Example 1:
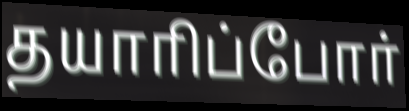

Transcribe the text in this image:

தயாரிப்போர்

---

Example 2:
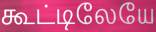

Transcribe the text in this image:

கூட்டிலேயே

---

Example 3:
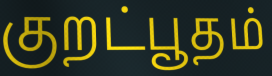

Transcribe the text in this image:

குறட்பூதம்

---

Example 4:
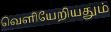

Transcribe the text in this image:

வெளியேறியதும்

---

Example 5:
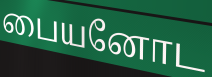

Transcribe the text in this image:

பையனோட